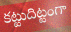
కట్టుదిట్టంగా